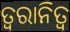
ତ୍ୱରାନିତ୍ଵ